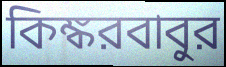
কিঙ্করবাবুর